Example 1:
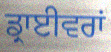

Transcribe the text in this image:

ਡ੍ਰਾਈਵਰਾਂ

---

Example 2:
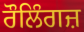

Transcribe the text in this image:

ਰੌਲਿੰਗਜ਼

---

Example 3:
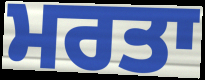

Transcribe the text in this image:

ਮਰਤਾ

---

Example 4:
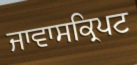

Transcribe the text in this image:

ਜਾਵਾਸਕ੍ਰਿਪਟ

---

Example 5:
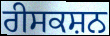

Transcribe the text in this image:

ਰੀਸਕਸ਼ਨ